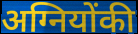
अग्नियोंकी